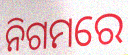
ନିଗମରେ